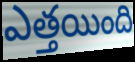
ఎత్తయింది